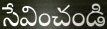
సేవించండి